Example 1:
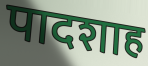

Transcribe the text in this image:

पादशाह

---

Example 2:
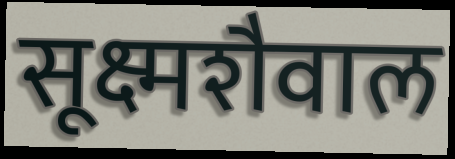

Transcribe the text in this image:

सूक्ष्मशैवाल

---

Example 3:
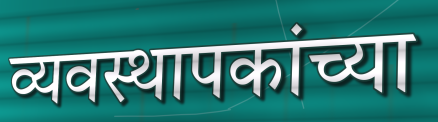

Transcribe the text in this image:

व्यवस्थापकांच्या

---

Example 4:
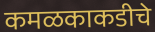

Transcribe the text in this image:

कमळकाकडीचे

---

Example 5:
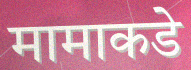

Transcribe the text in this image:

मामाकडे